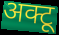
अक्टू